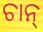
ଚାନ୍